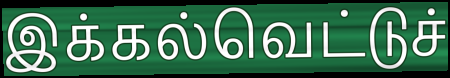
இக்கல்வெட்டுச்